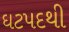
ઘટપદથી